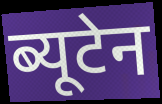
ब्यूटेन